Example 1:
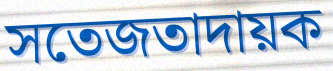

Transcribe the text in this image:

সতেজতাদায়ক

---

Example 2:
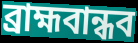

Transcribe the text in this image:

ব্রাহ্মবান্ধব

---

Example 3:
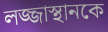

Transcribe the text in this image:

লজ্জাস্থানকে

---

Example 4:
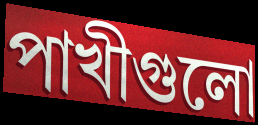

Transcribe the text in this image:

পাখীগুলো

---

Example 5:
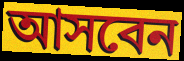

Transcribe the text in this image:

আসবেন